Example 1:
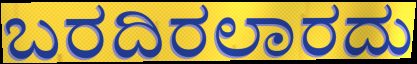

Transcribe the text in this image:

ಬರದಿರಲಾರದು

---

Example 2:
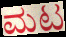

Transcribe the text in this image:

ಮಟ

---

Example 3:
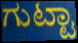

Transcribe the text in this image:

ಗುಟ್ಟಾ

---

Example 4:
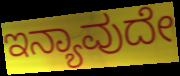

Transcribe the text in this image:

ಇನ್ಯಾವುದೇ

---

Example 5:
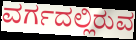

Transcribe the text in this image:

ವರ್ಗದಲ್ಲಿರುವ